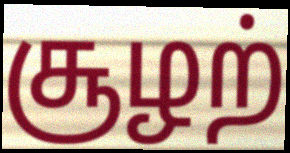
சூழற்